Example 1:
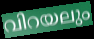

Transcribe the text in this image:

വിറയലും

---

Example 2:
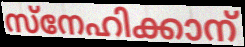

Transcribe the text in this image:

സ്നേഹിക്കാന്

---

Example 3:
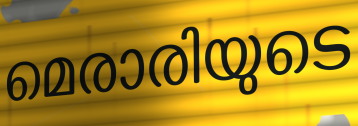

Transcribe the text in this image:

മെരാരിയുടെ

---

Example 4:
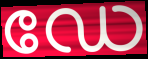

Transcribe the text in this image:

ഡേ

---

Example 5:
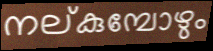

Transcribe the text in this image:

നല്കുമ്പോഴും